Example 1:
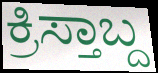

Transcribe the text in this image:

ಕ್ರಿಸ್ತಾಬ್ದ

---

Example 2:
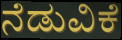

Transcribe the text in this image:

ನೆಡುವಿಕೆ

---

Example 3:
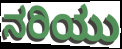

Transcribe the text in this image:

ನರಿಯು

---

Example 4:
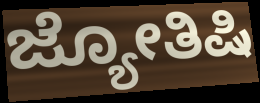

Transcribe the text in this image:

ಜ್ಯೋತಿಷಿ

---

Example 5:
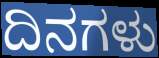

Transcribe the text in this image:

ದಿನಗಳು